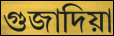
গুজাদিয়া